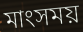
মাংসময়